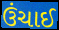
ઉંચાઈ